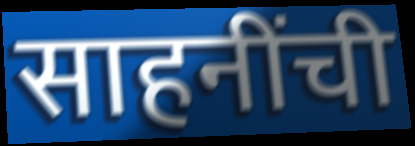
साहनींची